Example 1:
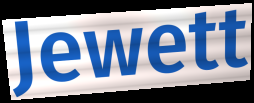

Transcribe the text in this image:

Jewett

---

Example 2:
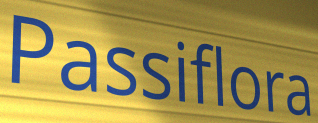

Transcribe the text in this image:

Passiflora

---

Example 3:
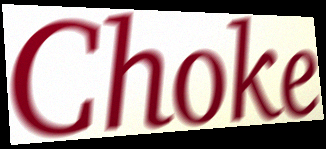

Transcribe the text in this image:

Choke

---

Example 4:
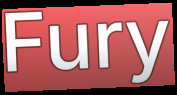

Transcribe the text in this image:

Fury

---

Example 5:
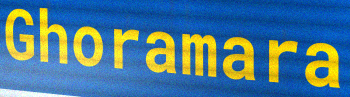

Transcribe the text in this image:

Ghoramara